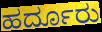
ಹರ್ದೂರು